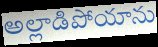
అల్లాడిపోయాను